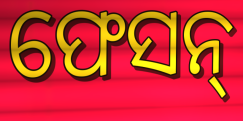
ଫେସନ୍